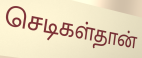
செடிகள்தான்